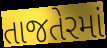
તાજતેરમાં